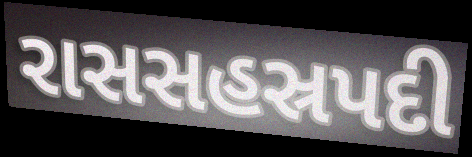
રાસસહસ્રપદી